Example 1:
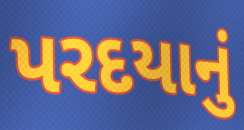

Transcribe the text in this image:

પરદયાનું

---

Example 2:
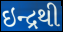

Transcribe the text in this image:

ઇન્દ્રથી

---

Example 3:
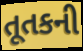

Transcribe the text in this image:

તૂતકની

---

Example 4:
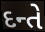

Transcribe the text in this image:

દન્તે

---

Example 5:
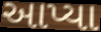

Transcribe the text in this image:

આપ્યા